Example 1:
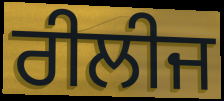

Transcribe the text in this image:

ਰੀਲੀਜ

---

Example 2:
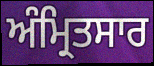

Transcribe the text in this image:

ਅੰਮ੍ਰਿਤਸਾਰ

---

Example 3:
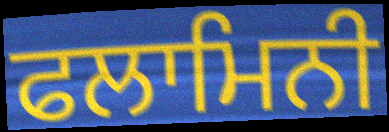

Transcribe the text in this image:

ਫਲਾਮਿਨੀ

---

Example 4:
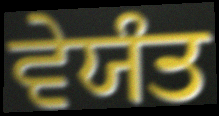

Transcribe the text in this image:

ਵੇਯੰਤ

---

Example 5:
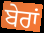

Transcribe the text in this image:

ਬੇਰਾਂ